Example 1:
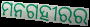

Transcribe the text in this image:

ମନଗହୀରର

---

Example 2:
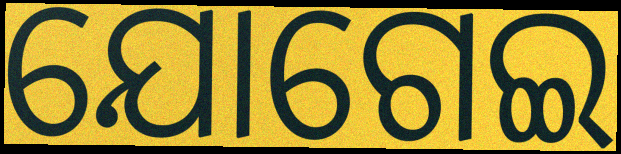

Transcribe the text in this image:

ଯୋଗେଇ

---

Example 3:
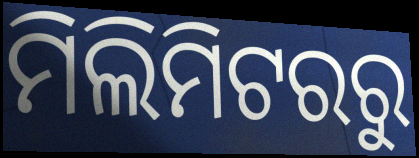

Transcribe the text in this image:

ମିଲିମିଟରରୁ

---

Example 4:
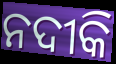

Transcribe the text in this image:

ନଦୀକି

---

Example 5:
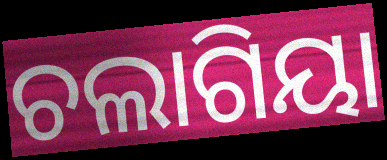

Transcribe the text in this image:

ଚଲାଗିୟା